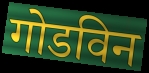
गोडविन